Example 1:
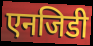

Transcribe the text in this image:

एनजिडी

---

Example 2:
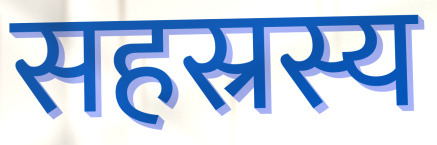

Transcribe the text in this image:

सहस्रस्य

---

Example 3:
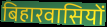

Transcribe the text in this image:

बिहारवासियों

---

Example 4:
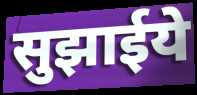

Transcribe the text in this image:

सुझाईये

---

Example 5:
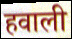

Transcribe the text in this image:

हवाली